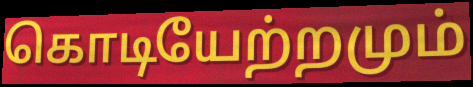
கொடியேற்றமும்